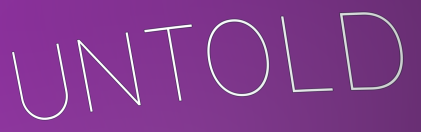
UNTOLD